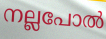
നല്ലപോൽ